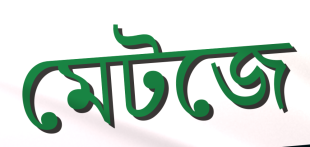
মেটজে